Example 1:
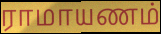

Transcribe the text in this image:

ராமாயணம்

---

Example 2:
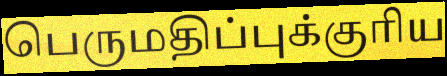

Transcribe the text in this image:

பெருமதிப்புக்குரிய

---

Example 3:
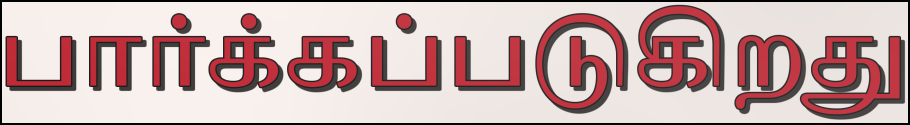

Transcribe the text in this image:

பார்க்கப்படுகிறது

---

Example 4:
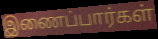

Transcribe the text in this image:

இணைப்பார்கள்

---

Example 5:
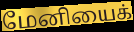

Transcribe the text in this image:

மேனியைக்